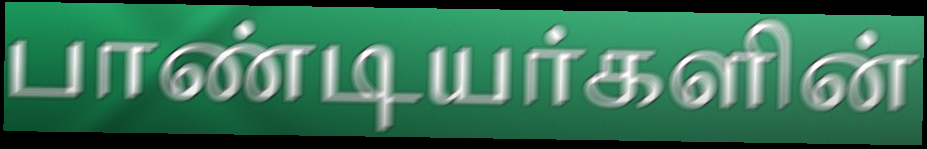
பாண்டியர்களின்